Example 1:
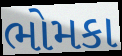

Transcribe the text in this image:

ભોમકા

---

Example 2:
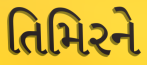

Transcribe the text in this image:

તિમિરને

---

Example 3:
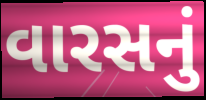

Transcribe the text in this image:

વારસનું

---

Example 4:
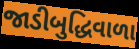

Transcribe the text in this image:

જાડીબુદ્ધિવાળા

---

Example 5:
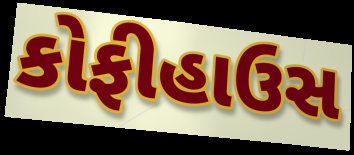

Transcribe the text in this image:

કોફીહાઉસ